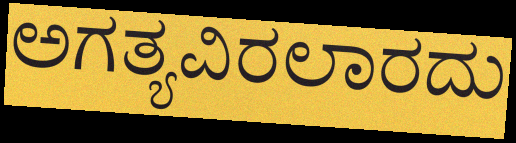
ಅಗತ್ಯವಿರಲಾರದು